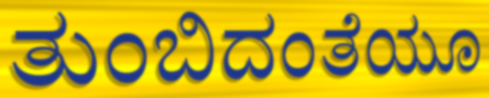
ತುಂಬಿದಂತೆಯೂ